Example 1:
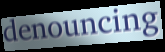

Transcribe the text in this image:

denouncing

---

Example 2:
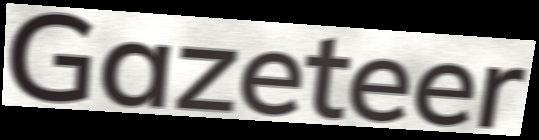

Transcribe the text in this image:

Gazeteer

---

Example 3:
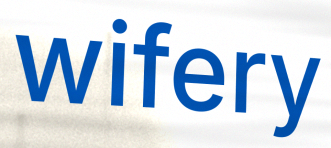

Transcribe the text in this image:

wifery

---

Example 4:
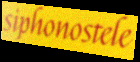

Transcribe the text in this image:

siphonostele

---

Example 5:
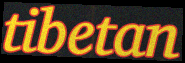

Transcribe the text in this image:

tibetan